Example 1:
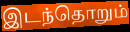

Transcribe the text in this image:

இடந்தொறும்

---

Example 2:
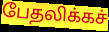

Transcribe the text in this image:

பேதலிக்கச்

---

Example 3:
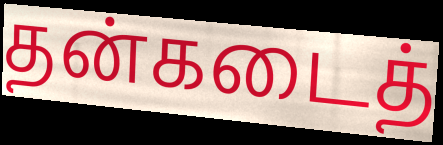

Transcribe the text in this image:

தன்கடைத்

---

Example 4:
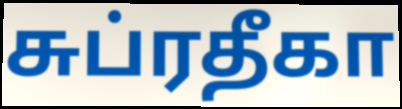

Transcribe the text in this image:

சுப்ரதீகா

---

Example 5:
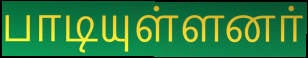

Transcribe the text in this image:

பாடியுள்ளனர்